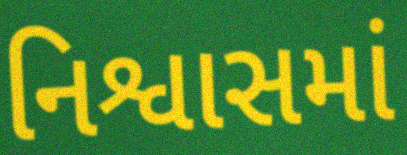
નિશ્વાસમાં